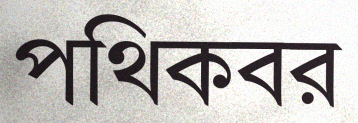
পথিকবর